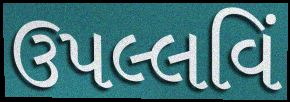
ઉપલ્લવિં